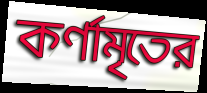
কর্ণামৃতের